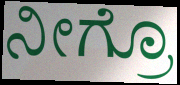
ನೀಗ್ರೊ